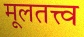
मूलतत्त्व